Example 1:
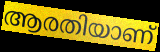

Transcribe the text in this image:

ആരതിയാണ്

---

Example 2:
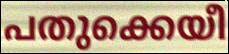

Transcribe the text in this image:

പതുക്കെയീ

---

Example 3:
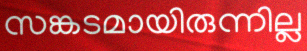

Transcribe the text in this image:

സങ്കടമായിരുന്നില്ല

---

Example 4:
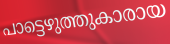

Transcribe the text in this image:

പാട്ടെഴുത്തുകാരായ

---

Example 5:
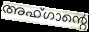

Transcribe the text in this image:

അഫ്ഗാന്റെ